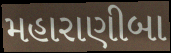
મહારાણીબા